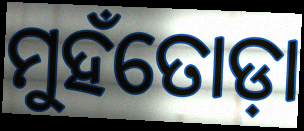
ମୁହଁତୋଡ଼ା